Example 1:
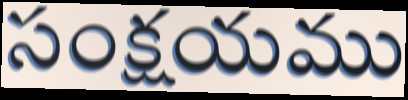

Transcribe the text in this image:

సంక్షయము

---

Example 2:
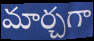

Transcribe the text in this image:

మార్చగా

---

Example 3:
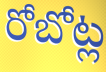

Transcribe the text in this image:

రోబోట్ల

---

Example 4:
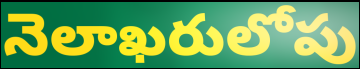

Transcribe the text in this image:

నెలాఖరులోపు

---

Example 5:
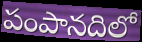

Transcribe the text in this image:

పంపానదిలో